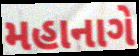
મહાનાગે